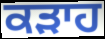
ਕੜਾਹ